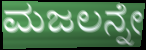
ಮಜಲನ್ನೇ